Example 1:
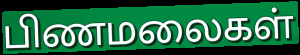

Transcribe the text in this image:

பிணமலைகள்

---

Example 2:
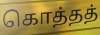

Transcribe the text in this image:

கொத்தத்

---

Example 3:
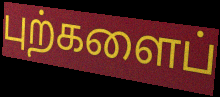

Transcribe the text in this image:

புற்களைப்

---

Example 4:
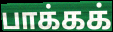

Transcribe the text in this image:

பாக்கக்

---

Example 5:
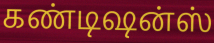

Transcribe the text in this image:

கண்டிஷன்ஸ்